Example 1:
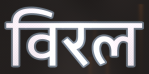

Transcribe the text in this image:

विरल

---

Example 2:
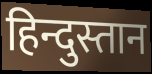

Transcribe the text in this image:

हिन्‍दुस्‍तान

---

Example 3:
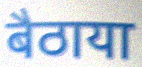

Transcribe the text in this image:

बैठाया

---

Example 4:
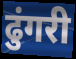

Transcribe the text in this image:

ढुंगरी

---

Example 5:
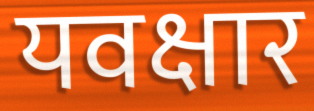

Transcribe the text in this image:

यवक्षार